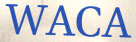
WACA